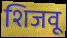
शिजवू